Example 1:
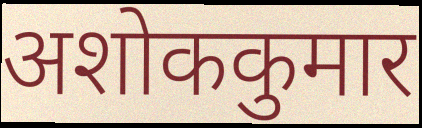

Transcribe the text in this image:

अशोककुमार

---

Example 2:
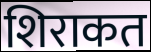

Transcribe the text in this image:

शिराकत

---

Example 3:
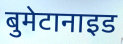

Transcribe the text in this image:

बुमेटानाइड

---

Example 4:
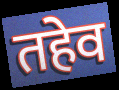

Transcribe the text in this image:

तहेव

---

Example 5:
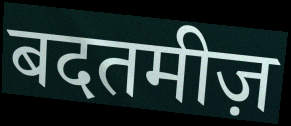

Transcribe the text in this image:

बदतमीज़